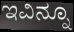
ಇವಿನ್ನೂ